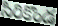
సిరికొండ